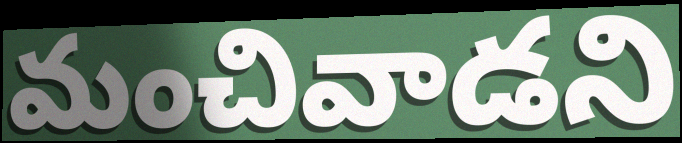
మంచివాడని